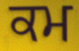
ਕਮ